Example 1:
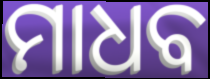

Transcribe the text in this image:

ମାଧବ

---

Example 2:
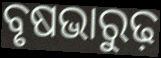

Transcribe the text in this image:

ବୃଷଭାରୁଢ଼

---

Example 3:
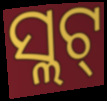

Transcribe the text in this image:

ସ୍ଲଟ୍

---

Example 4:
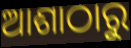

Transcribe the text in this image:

ଆଶାଠାରୁ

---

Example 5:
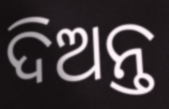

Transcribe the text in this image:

ଦିଅନ୍ତ